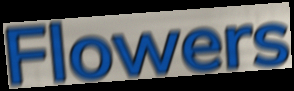
Flowers